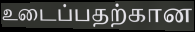
உடைப்பதற்கான